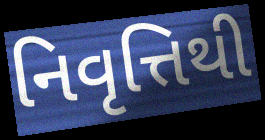
નિવૃત્તિથી